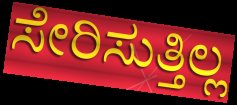
ಸೇರಿಸುತ್ತಿಲ್ಲ